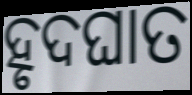
ହୃଦଘାତ